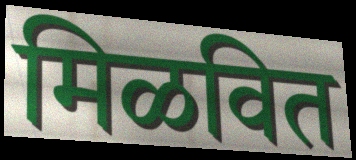
मिळवित